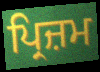
ਪ੍ਰਿਜ਼ਮ